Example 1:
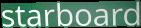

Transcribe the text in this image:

starboard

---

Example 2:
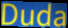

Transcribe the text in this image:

Duda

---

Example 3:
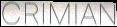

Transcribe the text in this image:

CRIMIAN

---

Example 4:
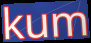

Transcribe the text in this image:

kum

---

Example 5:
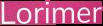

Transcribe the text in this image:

Lorimer